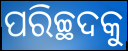
ପରିଚ୍ଛଦକୁ